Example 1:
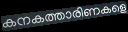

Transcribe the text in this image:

കനകത്താരിണകളെ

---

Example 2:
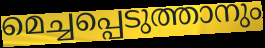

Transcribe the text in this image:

മെച്ചപ്പെടുത്താനും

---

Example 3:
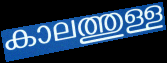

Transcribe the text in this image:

കാലത്തുള്ള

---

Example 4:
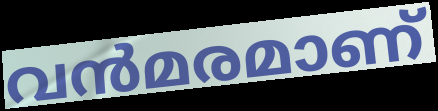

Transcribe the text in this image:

വൻമരമാണ്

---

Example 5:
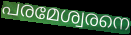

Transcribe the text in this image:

പരമേശ്വരനെ